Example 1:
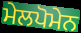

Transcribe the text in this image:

ਮੇਲਪੋਮੇਨ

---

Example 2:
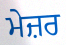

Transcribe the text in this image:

ਮੇਜ਼ਰ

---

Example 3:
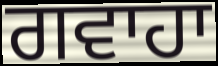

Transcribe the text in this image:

ਗਵਾਹਾ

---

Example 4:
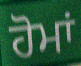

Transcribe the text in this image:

ਹੋਮਾਂ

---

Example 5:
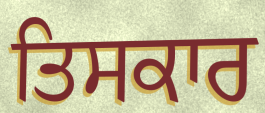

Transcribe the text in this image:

ਤਿਸਕਾਰ